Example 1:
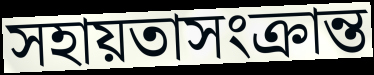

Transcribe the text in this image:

সহায়তাসংক্রান্ত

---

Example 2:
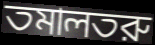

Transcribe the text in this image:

তমালতরু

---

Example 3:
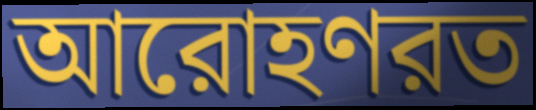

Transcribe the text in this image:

আরোহণরত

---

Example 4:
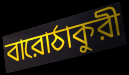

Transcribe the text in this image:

বারোঠাকুরী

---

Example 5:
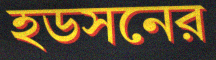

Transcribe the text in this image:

হডসনের